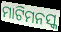
ମାଟିମନସ୍କ